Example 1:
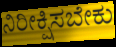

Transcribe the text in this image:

ನಿರೀಕ್ಷಿಸಬೇಕು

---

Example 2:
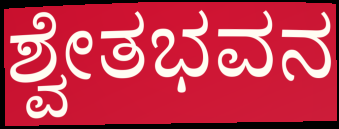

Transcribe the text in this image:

ಶ್ವೇತಭವನ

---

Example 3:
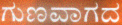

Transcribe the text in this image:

ಗುಣವಾಗದ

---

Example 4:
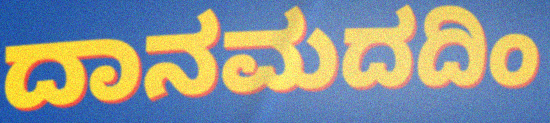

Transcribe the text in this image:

ದಾನಮದದಿಂ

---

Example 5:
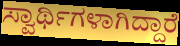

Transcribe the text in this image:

ಸ್ವಾರ್ಥಿಗಳಾಗಿದ್ದಾರೆ